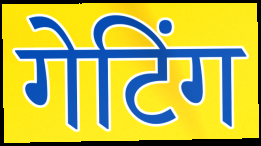
गेटिंग